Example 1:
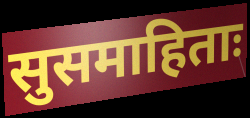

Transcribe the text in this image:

सुसमाहिताः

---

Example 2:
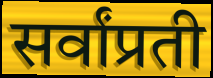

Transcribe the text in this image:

सर्वांप्रती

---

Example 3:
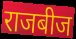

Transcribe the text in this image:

राजबीज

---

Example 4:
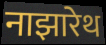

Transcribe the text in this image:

नाझारेथ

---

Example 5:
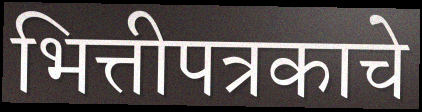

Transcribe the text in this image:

भित्तीपत्रकाचे